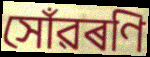
সোঁৱৰণি